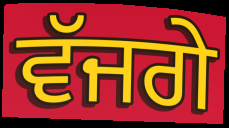
ਵੱਜਗੇ